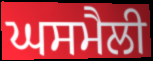
ਘਸਮੈਲੀ